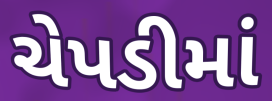
ચેપડીમાં